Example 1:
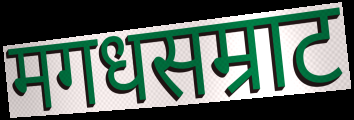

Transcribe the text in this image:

मगधसम्राट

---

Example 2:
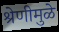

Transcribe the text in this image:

श्रेणीमुळे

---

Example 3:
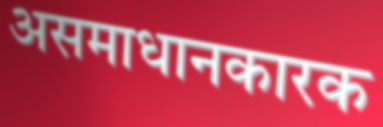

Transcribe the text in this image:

असमाधानकारक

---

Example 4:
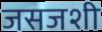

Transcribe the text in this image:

जसजशी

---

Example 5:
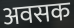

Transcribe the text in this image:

अवसक